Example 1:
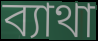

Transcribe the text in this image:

ব্যাথা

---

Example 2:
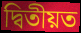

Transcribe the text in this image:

দ্বিতীয়ত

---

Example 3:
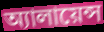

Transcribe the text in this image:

অ্যালায়েন্স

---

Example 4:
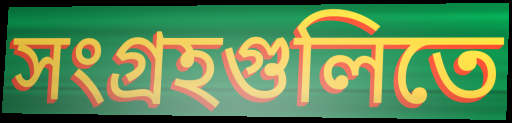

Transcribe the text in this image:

সংগ্রহগুলিতে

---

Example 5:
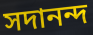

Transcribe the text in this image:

সদানন্দ